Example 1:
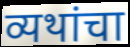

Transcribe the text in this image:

व्यथांचा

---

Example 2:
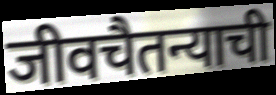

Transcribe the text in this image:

जीवचैतन्याची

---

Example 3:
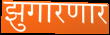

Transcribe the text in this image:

झुगारणार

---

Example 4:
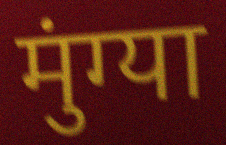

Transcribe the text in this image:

मुंग्या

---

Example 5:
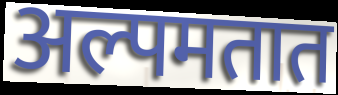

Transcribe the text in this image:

अल्पमतात